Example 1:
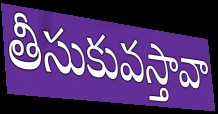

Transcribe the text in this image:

తీసుకువస్తావా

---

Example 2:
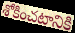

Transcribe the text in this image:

శోకించటానికి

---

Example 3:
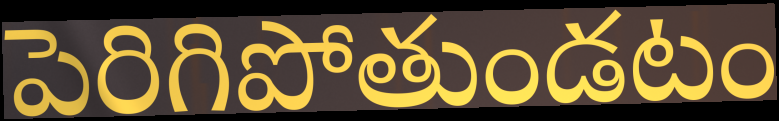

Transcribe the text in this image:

పెరిగిపోతుండటం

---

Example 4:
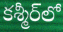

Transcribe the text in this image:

కశ్మీర్‌లో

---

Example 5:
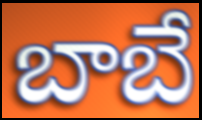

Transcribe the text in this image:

బాబే